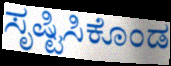
ಸೃಷ್ಟಿಸಿಕೊಂಡ